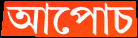
আপোচ